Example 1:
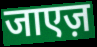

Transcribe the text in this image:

जाएज़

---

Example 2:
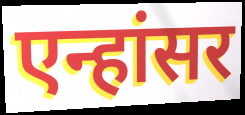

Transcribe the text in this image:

एन्हांसर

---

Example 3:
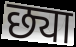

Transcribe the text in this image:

छ्या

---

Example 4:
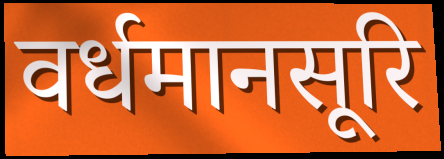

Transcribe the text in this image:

वर्धमानसूरि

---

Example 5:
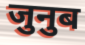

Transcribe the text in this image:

जुनुब